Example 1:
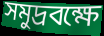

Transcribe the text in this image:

সমুদ্রবক্ষে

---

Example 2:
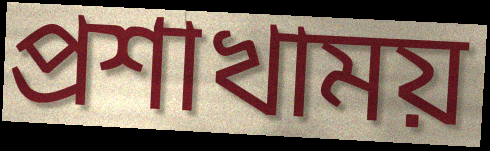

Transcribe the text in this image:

প্রশাখাময়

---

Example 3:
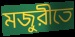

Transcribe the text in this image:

মজুরীতে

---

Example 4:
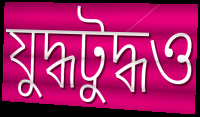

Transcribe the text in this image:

যুদ্ধটুদ্ধও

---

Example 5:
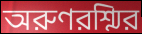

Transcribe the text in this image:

অরুণরশ্মির